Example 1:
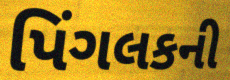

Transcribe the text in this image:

પિંગલકની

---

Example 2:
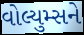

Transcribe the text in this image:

વોલ્યુમ્સને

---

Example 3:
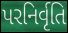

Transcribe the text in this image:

પરનિર્વૃતિ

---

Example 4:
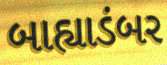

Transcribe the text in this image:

બાહ્યાડંબર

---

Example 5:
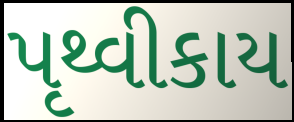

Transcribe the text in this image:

પૃથ્વીકાય